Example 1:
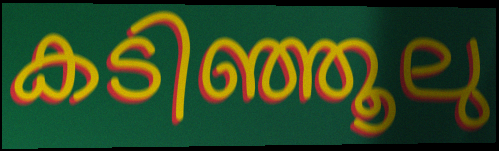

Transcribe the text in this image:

കടിഞ്ഞൂലു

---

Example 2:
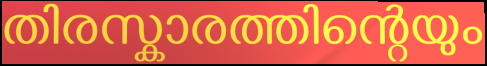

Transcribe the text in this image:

തിരസ്കാരത്തിന്റെയും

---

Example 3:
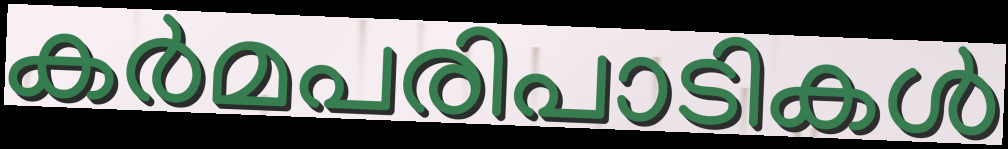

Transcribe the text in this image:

കർമപരിപാടികൾ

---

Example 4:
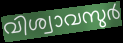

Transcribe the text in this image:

വിശ്വാവസുർ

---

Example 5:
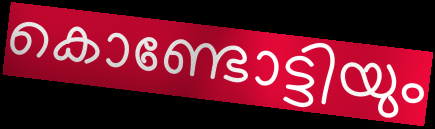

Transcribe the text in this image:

കൊണ്ടോട്ടിയും